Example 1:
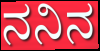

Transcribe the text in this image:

ನನಿನ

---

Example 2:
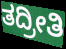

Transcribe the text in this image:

ತದ್ರೀತಿ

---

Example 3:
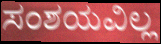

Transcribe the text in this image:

ಸಂಶಯವಿಲ್ಲ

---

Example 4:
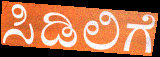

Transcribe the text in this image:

ಸಿಡಿಲಿಗೆ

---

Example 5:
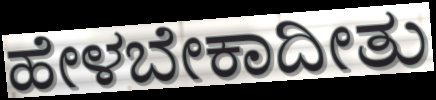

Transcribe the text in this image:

ಹೇಳಬೇಕಾದೀತು